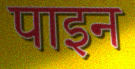
पाइन